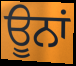
ਊਨਾਂ